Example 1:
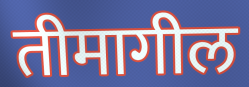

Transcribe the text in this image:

तीमागील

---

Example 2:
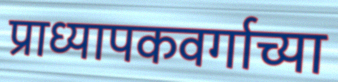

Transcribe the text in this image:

प्राध्यापकवर्गाच्या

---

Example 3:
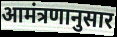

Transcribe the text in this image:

आमंत्रणानुसार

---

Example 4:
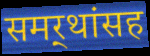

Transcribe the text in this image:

समर्थांसह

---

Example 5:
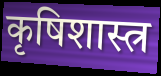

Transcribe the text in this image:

कृषिशास्त्र